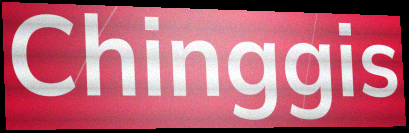
Chinggis